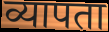
व्यापता